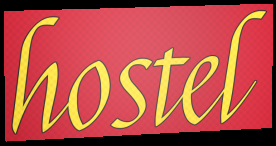
hostel